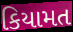
કિયામત